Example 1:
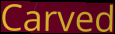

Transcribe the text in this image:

Carved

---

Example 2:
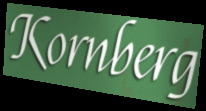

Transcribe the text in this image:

Kornberg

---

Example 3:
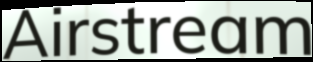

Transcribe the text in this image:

Airstream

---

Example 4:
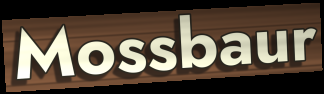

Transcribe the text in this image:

Mossbaur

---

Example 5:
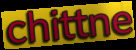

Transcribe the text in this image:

chittne